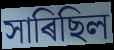
সাৰিছিল